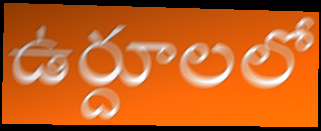
ఉర్దూలలో